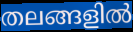
തലങ്ങളിൽ